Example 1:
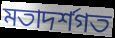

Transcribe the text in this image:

মতাদর্শগত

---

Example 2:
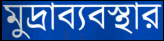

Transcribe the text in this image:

মুদ্রাব্যবস্থার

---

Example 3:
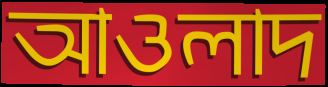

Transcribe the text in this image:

আওলাদ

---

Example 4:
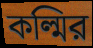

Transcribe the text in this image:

কল্মির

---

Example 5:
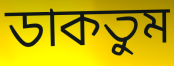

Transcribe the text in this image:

ডাকতুম